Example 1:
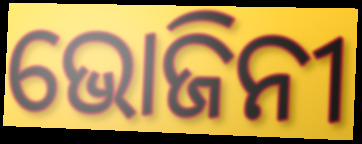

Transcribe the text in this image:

ଭୋଜିନୀ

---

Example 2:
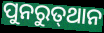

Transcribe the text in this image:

ପୁନରୁତ୍‌ଥାନ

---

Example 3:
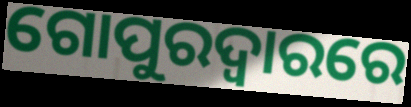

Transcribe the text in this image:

ଗୋପୁରଦ୍ବାରରେ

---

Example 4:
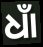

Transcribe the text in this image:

ଧାଁ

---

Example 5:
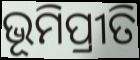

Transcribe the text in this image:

ଭୂମିପ୍ରୀତି